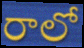
రాలో